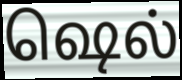
ஷெல்